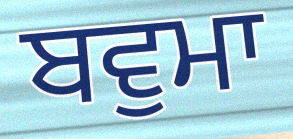
ਬਵੁਮਾ